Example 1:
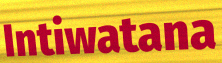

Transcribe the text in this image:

Intiwatana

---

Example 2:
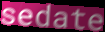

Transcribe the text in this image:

sedate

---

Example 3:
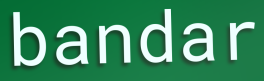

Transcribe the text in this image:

bandar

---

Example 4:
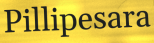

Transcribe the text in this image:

Pillipesara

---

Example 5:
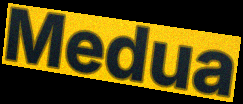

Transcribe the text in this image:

Medua